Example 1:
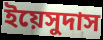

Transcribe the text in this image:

ইয়েসুদাস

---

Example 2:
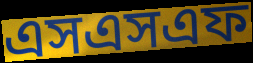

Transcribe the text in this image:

এসএসএফ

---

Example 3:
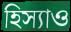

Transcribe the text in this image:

হিস্যাও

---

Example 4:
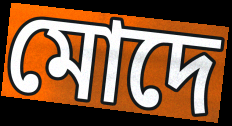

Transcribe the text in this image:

মোদে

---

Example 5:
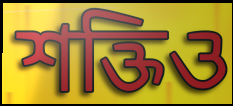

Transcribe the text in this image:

শক্তিও